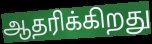
ஆதரிக்கிறது